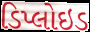
ડિપ્લોઇડ